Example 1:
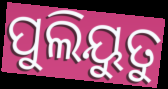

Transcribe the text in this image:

ପୁଲିୟୁତୁ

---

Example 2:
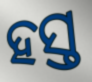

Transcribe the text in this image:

ହସ୍ତ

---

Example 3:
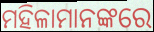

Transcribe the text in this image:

ମହିଳାମାନଙ୍କରେ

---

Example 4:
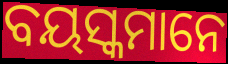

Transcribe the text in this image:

ବୟସ୍କମାନେ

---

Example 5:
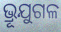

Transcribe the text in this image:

ଭ୍ରୂଯୁଗଳ